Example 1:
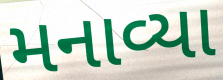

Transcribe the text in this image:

મનાવ્યા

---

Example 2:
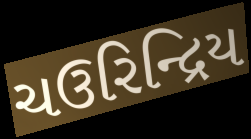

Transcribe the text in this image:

ચઉરિન્દ્રિય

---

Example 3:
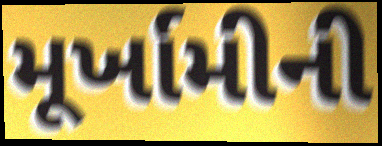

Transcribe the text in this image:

મૂર્ખામીની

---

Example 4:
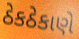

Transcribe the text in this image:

ઠેકઠેકાણે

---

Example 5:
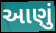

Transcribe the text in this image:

આણું